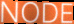
NODE